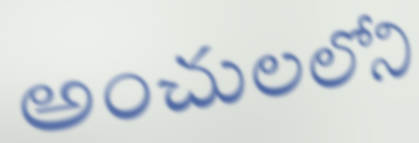
అంచులలోని